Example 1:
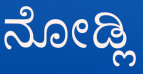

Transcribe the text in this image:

ನೋಡ್ಲಿ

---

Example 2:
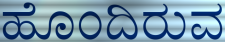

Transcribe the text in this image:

ಹೊಂದಿರುವ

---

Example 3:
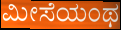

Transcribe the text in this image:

ಮೀಸೆಯಂಥ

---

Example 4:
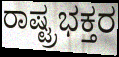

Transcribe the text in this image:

ರಾಷ್ಟ್ರಭಕ್ತರ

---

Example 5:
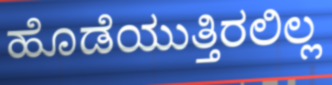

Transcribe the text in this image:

ಹೊಡೆಯುತ್ತಿರಲಿಲ್ಲ